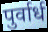
पुर्वार्ध